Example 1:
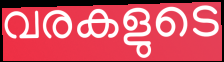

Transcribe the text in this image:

വരകളുടെ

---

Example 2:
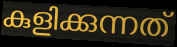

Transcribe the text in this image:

കുളിക്കുന്നത്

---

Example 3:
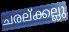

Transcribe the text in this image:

ചരല്ക്കല്ലു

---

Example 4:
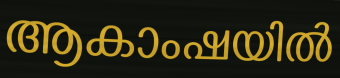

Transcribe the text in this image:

ആകാംഷയിൽ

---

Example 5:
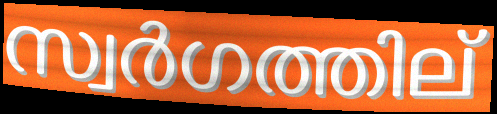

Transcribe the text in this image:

സ്വർഗത്തില്